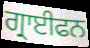
ਗ੍ਰਾਈਫਨ